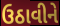
ઉઠાવીને